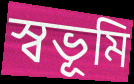
স্বভূমি